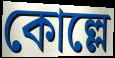
কোল্লে